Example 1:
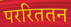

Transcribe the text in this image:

पररिततन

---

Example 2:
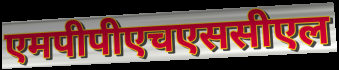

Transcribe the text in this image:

एमपीपीएचएससीएल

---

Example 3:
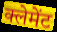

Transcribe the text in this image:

क्लेमेंट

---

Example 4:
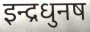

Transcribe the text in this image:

इन्द्रधुनष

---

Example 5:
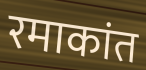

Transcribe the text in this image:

रमाकांत